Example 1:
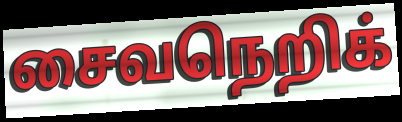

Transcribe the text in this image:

சைவநெறிக்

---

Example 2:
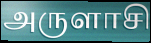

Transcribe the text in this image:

அருளாசி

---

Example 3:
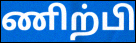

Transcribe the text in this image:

ணிற்பி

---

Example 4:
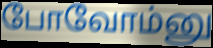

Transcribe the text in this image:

போவோம்னு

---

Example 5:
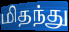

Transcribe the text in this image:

மிதந்து